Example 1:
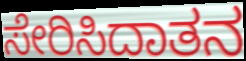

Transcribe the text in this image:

ಸೇರಿಸಿದಾತನ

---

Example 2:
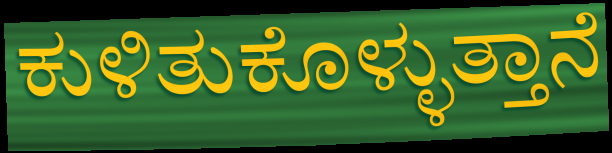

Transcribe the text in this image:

ಕುಳಿತುಕೊಳ್ಳುತ್ತಾನೆ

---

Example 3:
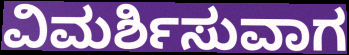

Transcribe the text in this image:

ವಿಮರ್ಶಿಸುವಾಗ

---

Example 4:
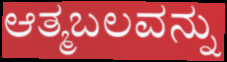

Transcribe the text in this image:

ಆತ್ಮಬಲವನ್ನು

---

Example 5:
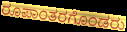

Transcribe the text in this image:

ರೂಪಾಂತರಗೊಂಡರು